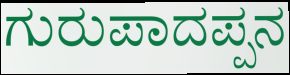
ಗುರುಪಾದಪ್ಪನ